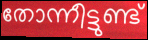
തോന്നീട്ടുണ്ട്